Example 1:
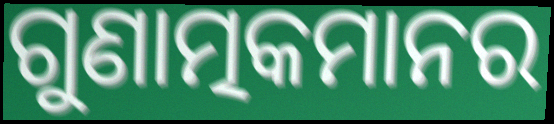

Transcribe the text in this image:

ଗୁଣାତ୍ମକମାନର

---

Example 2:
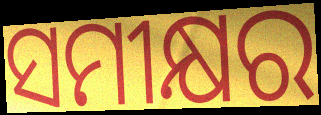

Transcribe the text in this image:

ସମୀକ୍ଷର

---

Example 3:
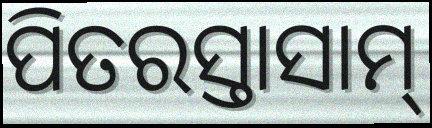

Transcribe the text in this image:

ପିତରସ୍ତାସାମ୍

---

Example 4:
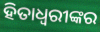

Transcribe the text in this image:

ହିତାଧ୍ଵରୀଙ୍କର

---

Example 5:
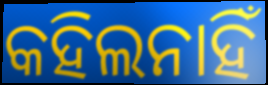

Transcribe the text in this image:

କହିଲନାହିଁ